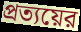
প্রত্যয়ের